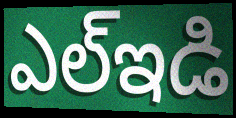
ఎల్ఇడి